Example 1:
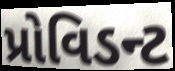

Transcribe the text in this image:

પ્રોવિડન્ટ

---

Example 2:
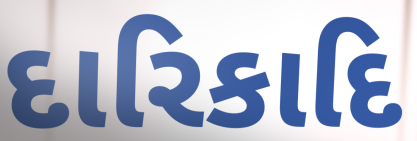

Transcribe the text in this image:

દારિકાદિ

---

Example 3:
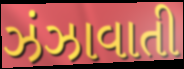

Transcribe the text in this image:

ઝંઝાવાતી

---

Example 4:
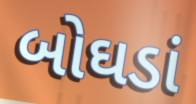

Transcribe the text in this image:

બોઘડાં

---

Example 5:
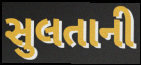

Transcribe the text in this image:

સુલતાની